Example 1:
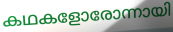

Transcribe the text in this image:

കഥകളോരോന്നായി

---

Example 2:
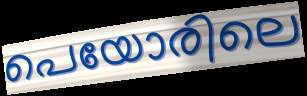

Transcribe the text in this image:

പെയോരിലെ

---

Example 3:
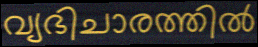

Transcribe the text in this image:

വ്യഭിചാരത്തിൽ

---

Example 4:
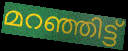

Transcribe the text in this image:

മറഞ്ഞിട്ട്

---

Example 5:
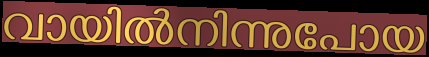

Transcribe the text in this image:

വായിൽനിന്നുപോയ